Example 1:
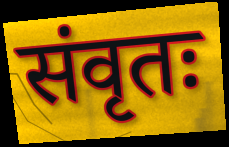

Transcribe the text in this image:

संवृतः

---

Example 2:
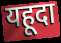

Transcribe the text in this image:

यहूदा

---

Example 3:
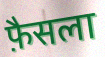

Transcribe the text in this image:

फ़ैसला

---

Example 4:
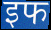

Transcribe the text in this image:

इफ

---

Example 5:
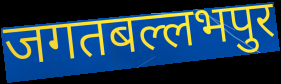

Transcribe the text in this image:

जगतबल्लभपुर